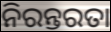
ନିରନ୍ତରତା